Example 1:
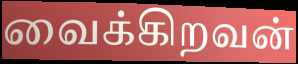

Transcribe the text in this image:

வைக்கிறவன்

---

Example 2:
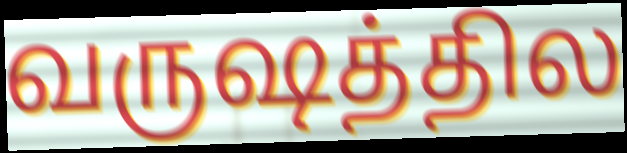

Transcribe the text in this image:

வருஷத்தில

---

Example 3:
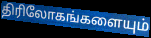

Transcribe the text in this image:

திரிலோகங்களையும்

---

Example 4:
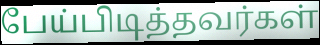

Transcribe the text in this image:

பேய்பிடித்தவர்கள்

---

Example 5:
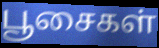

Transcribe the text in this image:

பூசைகள்